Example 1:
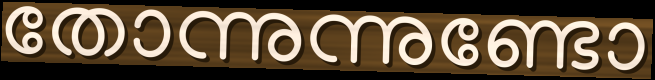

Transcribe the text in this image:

തോന്നുന്നുണ്ടോ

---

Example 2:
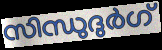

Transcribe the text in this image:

സിന്ധുദുർഗ്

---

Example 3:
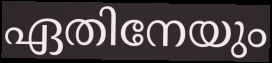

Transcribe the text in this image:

ഏതിനേയും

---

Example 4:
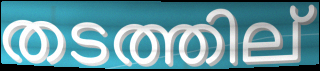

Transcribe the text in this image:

തടത്തില്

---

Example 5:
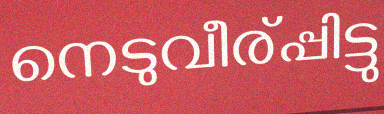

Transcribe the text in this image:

നെടുവീര്പ്പിട്ടു